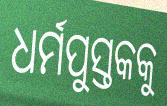
ଧର୍ମପୁସ୍ତକକୁ